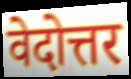
वेदोत्तर